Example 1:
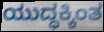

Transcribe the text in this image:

ಯುದ್ಧಕ್ಕಿಂತ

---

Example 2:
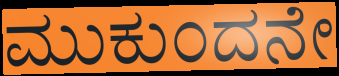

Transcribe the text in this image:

ಮುಕುಂದನೇ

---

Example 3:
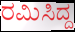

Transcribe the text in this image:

ರಮಿಸಿದ್ದ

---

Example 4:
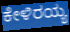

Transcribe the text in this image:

ಕೇಳಿರಯ್ಯ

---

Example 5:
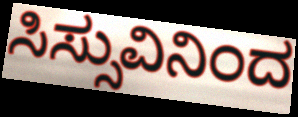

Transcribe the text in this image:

ಸಿಸ್ಸುವಿನಿಂದ